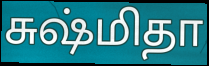
சுஷ்மிதா